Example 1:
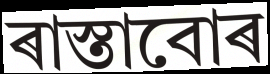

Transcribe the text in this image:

ৰাস্তাবোৰ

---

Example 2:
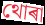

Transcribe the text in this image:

থোৰা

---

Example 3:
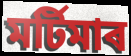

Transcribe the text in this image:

মৰ্টিমাৰ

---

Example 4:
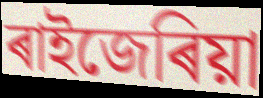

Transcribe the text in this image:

ৰাইজেৰিয়া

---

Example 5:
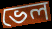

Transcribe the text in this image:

ভেল